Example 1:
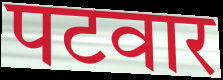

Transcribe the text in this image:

पटवार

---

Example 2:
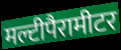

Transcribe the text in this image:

मल्टीपैरामीटर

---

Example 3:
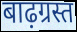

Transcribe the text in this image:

बाढ़ग्रस्त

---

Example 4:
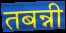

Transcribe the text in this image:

तबन्नी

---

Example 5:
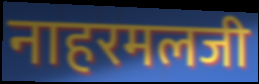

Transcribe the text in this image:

नाहरमलजी